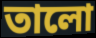
তালো